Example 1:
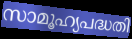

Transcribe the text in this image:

സാമൂഹ്യപദ്ധതി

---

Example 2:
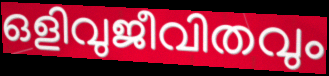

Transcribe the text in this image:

ഒളിവുജീവിതവും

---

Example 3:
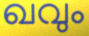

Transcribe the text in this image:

ഖവും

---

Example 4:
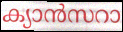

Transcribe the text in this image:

ക്യാൻസറാ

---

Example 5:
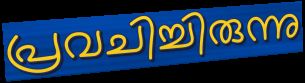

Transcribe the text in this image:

പ്രവചിച്ചിരുന്നു